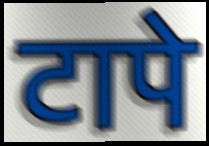
टापे